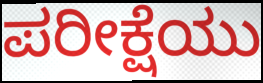
ಪರೀಕ್ಷೆಯು